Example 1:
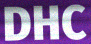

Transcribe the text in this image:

DHC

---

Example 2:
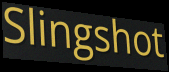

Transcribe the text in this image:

Slingshot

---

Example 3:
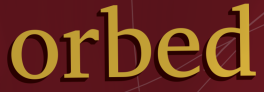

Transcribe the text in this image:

orbed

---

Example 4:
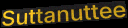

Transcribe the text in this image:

Suttanuttee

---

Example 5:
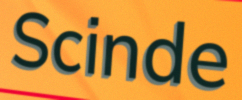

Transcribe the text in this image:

Scinde